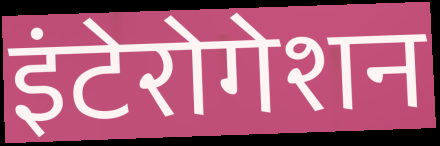
इंटेरोगेशन